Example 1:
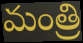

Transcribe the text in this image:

మంత్రి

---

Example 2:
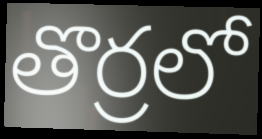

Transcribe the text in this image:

తొర్రలో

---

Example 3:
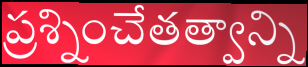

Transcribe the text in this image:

ప్రశ్నించేతత్వాన్ని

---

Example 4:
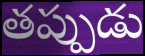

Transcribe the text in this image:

తప్పుడు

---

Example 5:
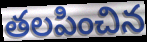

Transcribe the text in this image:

తలపించిన